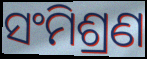
ସଂମିଶ୍ରଣ